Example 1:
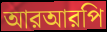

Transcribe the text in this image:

আরআরপি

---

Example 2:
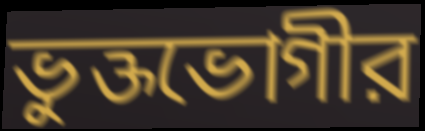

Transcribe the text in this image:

ভুক্তভোগীর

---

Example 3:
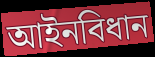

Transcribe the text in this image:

আইনবিধান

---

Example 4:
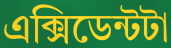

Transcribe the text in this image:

এক্সিডেন্টটা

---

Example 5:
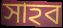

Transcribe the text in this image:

সাহব